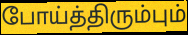
போய்த்திரும்பும்